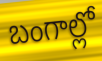
బంగాల్లో